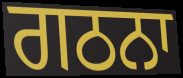
ਗਠਨਾ